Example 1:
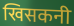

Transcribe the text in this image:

खिसकनी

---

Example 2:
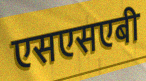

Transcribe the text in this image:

एसएसएबी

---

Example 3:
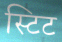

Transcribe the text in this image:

स्टिट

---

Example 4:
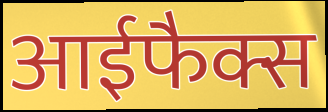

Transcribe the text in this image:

आईफैक्स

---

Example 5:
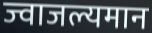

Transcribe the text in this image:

ज्वाजल्यमान